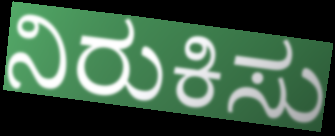
ನಿರುಕಿಸು